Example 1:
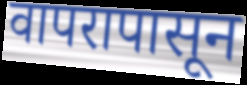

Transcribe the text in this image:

वापरापासून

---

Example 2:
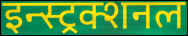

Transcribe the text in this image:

इन्स्ट्रक्शनल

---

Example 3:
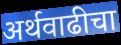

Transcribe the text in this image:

अर्थवाढीचा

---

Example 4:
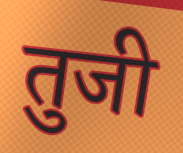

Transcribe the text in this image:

तुजी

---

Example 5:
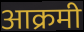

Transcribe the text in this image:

आक्रमी